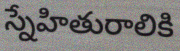
స్నేహితురాలికి